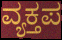
ವ್ಯಕ್ತಪ